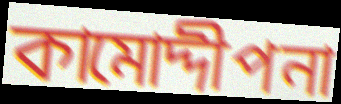
কামোদ্দীপনা